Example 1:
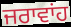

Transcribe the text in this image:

ਜਰਾਵਾਂਹ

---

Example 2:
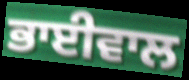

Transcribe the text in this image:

ਭਾਈਵਾਲ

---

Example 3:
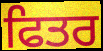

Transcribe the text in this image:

ਫਿਤਰ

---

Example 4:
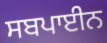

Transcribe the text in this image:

ਸਬਪਾਈਨ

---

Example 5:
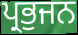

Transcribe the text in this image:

ਪ੍ਰਭੁਜਨ